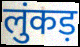
लुंकड़